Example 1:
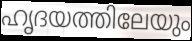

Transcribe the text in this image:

ഹൃദയത്തിലേയും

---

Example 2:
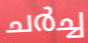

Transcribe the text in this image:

ചർച്ച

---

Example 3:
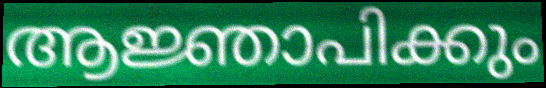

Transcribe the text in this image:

ആജ്ഞാപിക്കും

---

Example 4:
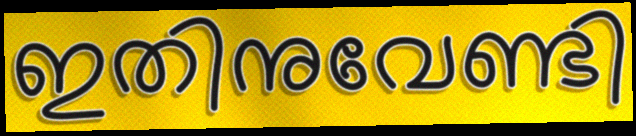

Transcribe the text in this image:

ഇതിനുവേണ്ടി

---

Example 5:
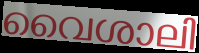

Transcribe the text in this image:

വൈശാലി